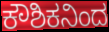
ಕೌಶಿಕನಿಂದ